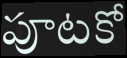
పూటకో